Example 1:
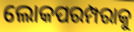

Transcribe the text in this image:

ଲୋକପରମ୍ପରାକୁ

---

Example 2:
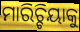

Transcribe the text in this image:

ମାରିଚ୍ଚିୟାକୁ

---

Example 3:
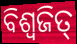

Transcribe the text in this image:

ବିଶ୍ୱଜିତ୍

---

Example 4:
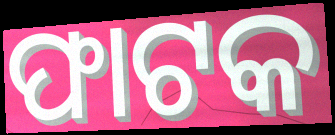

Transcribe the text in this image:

ଫାଟକ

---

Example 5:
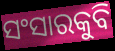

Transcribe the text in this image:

ସଂସାରକୁବି